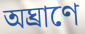
অঘ্রাণে